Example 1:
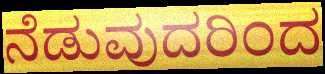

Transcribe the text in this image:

ನೆಡುವುದರಿಂದ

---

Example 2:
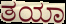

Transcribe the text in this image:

ತಯಾ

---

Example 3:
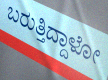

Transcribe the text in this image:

ಬರುತ್ತಿದ್ದಾಳೋ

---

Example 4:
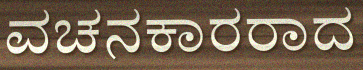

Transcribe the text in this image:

ವಚನಕಾರರಾದ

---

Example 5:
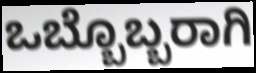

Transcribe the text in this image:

ಒಬ್ಬೊಬ್ಬರಾಗಿ